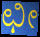
ಛೀ